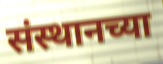
संस्थानच्या